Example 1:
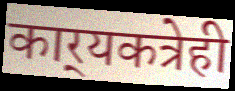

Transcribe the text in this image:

कार्यकत्रेही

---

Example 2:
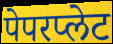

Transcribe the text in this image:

पेपरप्लेट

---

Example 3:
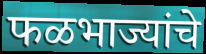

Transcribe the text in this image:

फळभाज्यांचे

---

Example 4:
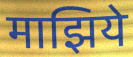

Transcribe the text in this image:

माझिये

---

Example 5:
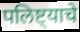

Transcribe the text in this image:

पलिष्ट्याचे